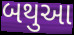
બથુઆ